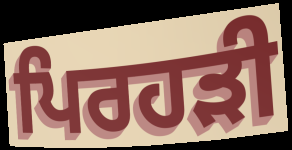
ਪਿਰਹੜੀ